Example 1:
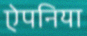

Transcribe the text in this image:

ऐपनिया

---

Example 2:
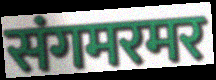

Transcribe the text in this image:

संगमरमर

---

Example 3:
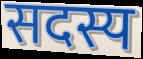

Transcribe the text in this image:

सदस्‍य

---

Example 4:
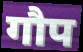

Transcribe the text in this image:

गौप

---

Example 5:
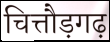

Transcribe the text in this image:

चित्तौड़गढ़